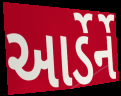
આર્ડેર્ને